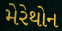
મેરેથોન